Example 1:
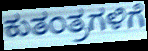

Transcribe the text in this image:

ಕುತಂತ್ರಗಳಿಗೆ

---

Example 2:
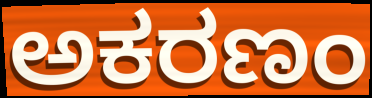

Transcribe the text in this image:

ಅಕರಣಂ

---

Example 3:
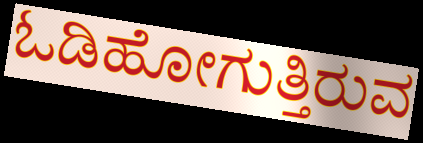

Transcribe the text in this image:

ಓಡಿಹೋಗುತ್ತಿರುವ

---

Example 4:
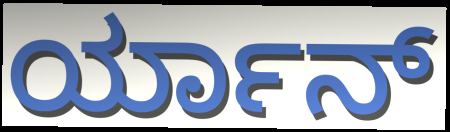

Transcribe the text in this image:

ರ್ಯಾನ್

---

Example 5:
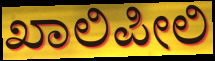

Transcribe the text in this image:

ಖಾಲಿಪೀಲಿ